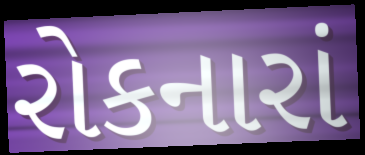
રોકનારાં